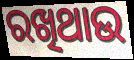
ରଖିଥାଉ